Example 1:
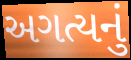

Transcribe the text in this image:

અગત્યનું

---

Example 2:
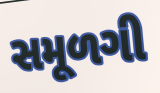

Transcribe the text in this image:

સમૂળગી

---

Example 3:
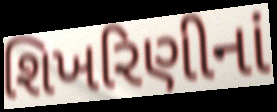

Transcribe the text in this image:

શિખરિણીનાં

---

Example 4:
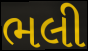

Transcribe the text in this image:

ભલી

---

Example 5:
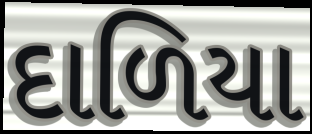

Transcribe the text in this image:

દાળિયા